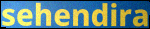
sehendira